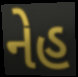
નેહ